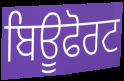
ਬਿਊਫੋਰਟ